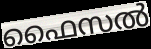
ഫൈസൽ